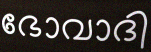
ഭോവാദി